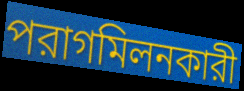
পরাগমিলনকারী